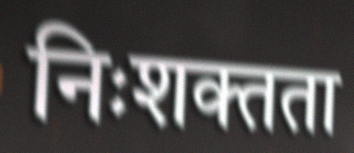
निःशक्तता